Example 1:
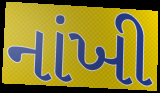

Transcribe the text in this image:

નાંખી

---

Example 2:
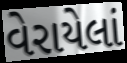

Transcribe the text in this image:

વેરાયેલાં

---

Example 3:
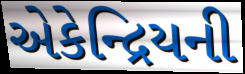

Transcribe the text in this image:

એકેન્દ્રિયની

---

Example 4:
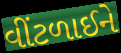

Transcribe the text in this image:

વીંટળાઈને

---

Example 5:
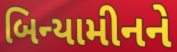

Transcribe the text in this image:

બિન્યામીનને